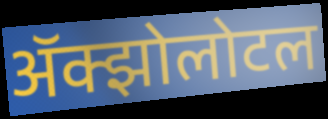
ॲक्झोलोटल